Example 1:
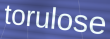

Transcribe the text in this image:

torulose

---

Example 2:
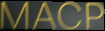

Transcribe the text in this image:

MACP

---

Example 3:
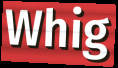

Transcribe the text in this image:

Whig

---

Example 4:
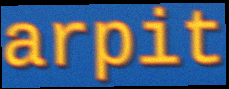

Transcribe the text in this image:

arpit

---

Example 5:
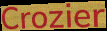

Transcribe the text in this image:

Crozier